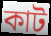
কাট